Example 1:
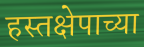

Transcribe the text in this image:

हस्तक्षेपाच्या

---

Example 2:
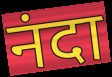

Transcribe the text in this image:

नंदा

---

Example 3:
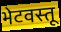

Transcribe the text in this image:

भेटवस्तू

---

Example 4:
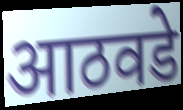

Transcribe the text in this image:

आठवडे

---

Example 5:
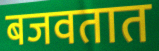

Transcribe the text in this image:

बजवतात